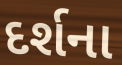
દર્શના